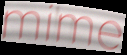
mime